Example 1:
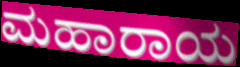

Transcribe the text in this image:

ಮಹಾರಾಯ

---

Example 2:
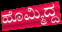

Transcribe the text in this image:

ಹೊಮ್ಮಿದ್ದ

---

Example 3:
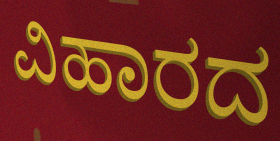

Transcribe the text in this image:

ವಿಹಾರದ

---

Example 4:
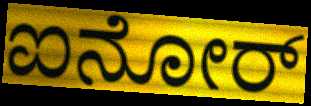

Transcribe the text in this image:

ಐನೋರ್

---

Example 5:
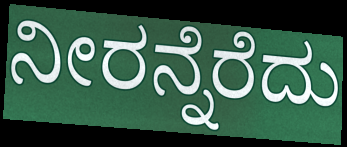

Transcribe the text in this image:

ನೀರನ್ನೆರೆದು